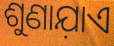
ଶୁଣାଯ଼ାଏ